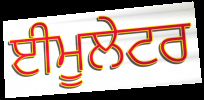
ਈਮੂਲੇਟਰ